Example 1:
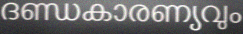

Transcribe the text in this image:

ദണ്ഡകാരണ്യവും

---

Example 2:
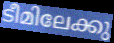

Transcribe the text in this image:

ടീമിലേക്കു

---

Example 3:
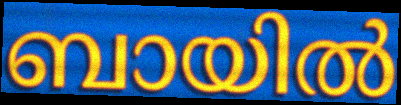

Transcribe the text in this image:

ബായിൽ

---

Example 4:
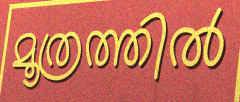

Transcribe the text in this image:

മൂത്രത്തിൽ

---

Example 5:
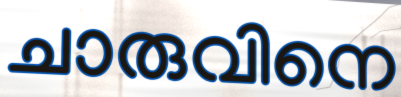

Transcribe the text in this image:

ചാരുവിനെ